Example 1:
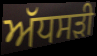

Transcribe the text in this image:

ਅੱਧਸੜੀ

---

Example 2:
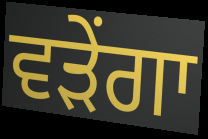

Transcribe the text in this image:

ਵੜੇਂਗਾ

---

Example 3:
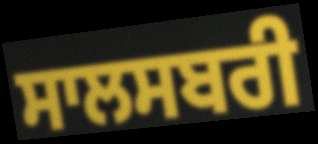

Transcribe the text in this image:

ਸਾਲਸਬਰੀ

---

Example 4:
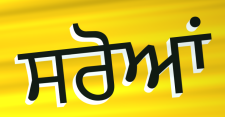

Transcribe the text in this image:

ਸਰੋਆਂ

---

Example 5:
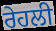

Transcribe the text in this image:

ਰੇਹਲੀ